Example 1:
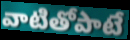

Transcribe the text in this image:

వాటితోపాటే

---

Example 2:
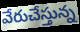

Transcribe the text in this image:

వేరుచేస్తున్న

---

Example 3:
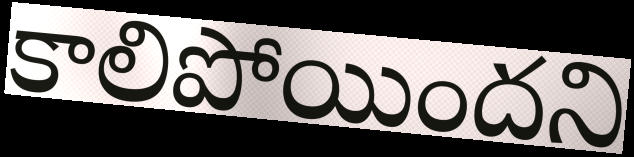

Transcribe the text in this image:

కాలిపోయిందని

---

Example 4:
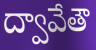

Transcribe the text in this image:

ద్వావేతౌ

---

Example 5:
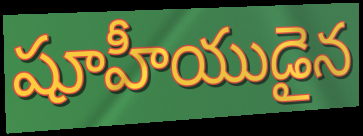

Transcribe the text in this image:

షూహీయుడైన